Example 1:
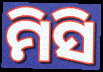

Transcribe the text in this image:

ମିସି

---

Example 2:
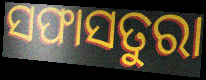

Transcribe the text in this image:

ସଫାସତୁରା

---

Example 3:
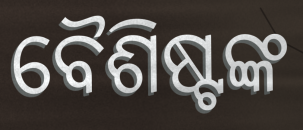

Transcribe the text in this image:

ବୈଶିଷ୍ଟଙ୍କ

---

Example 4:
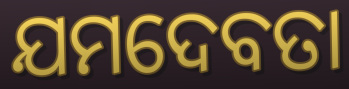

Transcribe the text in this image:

ଯମଦେବତା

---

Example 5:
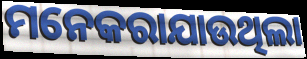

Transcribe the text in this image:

ମନେକରାଯାଉଥିଲା